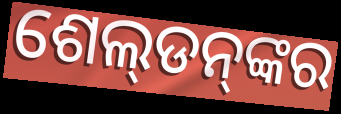
ଶେଲ୍‌ଡନ୍‌ଙ୍କର